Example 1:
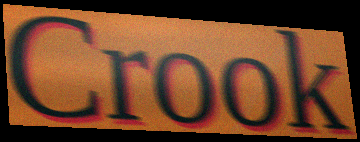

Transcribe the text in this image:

Crook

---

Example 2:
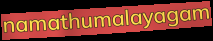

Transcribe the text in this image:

namathumalayagam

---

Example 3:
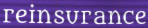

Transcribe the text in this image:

reinsurance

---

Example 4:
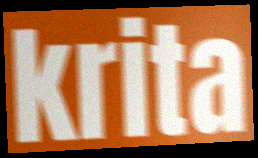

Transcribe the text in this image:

krita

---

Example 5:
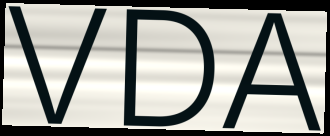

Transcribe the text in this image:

VDA